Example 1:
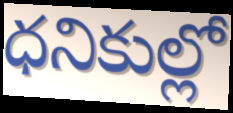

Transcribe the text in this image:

ధనికుల్లో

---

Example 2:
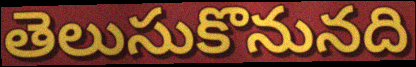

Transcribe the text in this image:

తెలుసుకొనునది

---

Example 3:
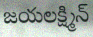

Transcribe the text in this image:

జయలక్ష్మిన్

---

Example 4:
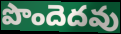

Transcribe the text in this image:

పొందెదవు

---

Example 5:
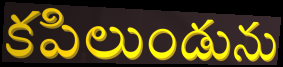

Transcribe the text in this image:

కపిలుండును